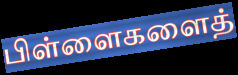
பிள்ளைகளைத்